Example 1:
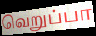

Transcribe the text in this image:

வெறுப்பா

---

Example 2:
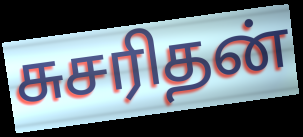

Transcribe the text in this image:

சுசரிதன்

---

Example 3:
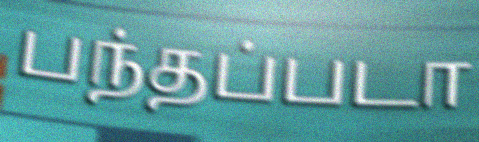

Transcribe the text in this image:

பந்தப்படா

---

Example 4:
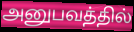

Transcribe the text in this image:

அனுபவத்தில்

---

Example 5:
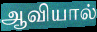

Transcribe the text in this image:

ஆவியால்